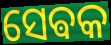
ସେଵକ